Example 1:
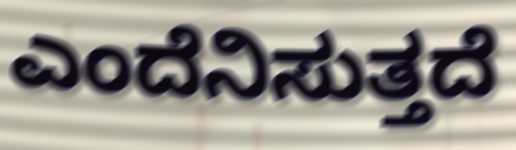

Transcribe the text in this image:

ಎಂದೆನಿಸುತ್ತದೆ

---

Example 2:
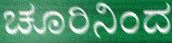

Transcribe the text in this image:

ಚೂರಿನಿಂದ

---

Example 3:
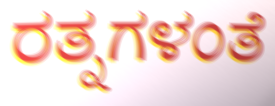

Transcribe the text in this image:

ರತ್ನಗಳಂತೆ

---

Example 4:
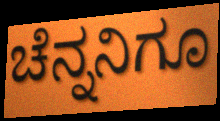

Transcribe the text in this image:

ಚೆನ್ನನಿಗೂ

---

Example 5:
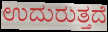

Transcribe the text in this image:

ಉದುರುತ್ತದೆ